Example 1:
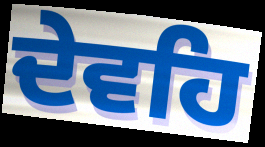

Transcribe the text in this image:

ਦੇਵਹਿ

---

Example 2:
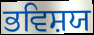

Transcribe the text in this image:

ਭਵਿਸ਼ਯ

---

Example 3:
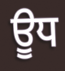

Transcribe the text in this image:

ਊਧ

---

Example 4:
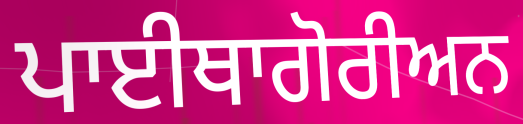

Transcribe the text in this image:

ਪਾਈਥਾਗੋਰੀਅਨ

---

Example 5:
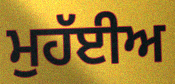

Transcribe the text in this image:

ਮੁਹੱਈਅ